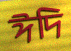
ঈদি